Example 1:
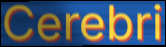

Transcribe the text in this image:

Cerebri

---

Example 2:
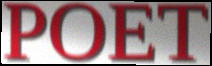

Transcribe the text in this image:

POET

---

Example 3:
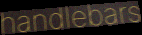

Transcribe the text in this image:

handlebars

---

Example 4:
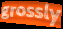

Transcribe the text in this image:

grossly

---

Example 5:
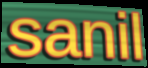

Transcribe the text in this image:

sanil